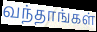
வந்தாங்கள்